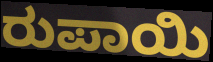
ರುಪಾಯಿ